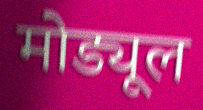
मोड्यूल